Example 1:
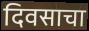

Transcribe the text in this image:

दिवसाचा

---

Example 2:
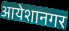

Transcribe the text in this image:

आयेशानगर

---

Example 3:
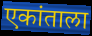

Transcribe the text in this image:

एकांताला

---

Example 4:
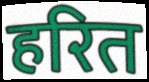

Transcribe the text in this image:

हरित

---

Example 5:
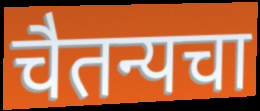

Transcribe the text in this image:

चैतन्यचा